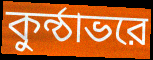
কুন্ঠাভরে